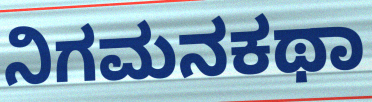
ನಿಗಮನಕಥಾ